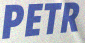
PETR